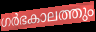
ഗർഭകാലത്തും